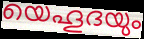
യെഹൂദയും